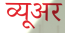
व्यूअर